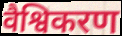
वैश्विकरण